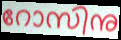
റോസിനു